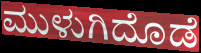
ಮುಳುಗಿದೊಡೆ